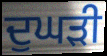
ਦੁਘੜੀ